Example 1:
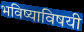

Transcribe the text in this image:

भविष्याविषयी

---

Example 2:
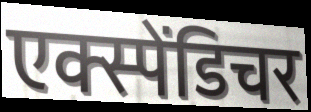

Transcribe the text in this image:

एक्स्पेंडिचर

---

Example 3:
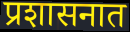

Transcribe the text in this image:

प्रशासनात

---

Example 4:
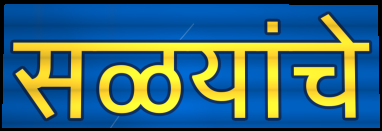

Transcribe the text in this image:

सळयांचे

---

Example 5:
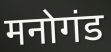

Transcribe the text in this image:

मनोगंड